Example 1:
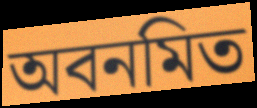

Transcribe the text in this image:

অবনমিত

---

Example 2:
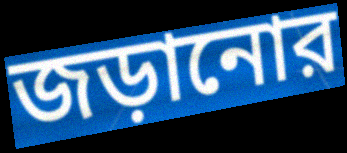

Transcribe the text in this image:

জড়ানোর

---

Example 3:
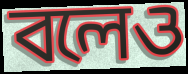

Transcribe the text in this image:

বলেও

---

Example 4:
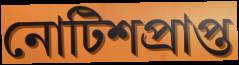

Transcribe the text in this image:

নোটিশপ্রাপ্ত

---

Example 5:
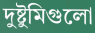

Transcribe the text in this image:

দুষ্টুমিগুলো